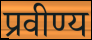
प्रवीण्य